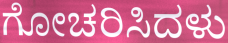
ಗೋಚರಿಸಿದಳು